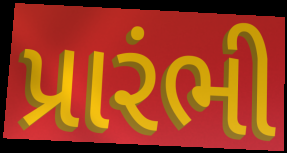
પ્રારંભી